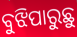
ବୁଝିପାରୁଛୁ